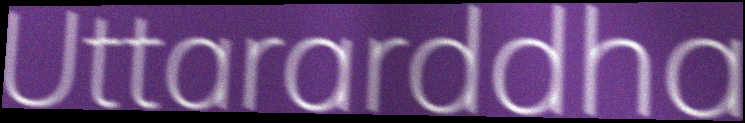
Uttararddha